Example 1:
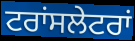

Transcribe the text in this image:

ਟਰਾਂਸਲੇਟਰਾਂ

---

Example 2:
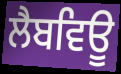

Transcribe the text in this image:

ਲੈਬਵਿਊ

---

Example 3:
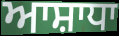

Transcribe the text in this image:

ਆਸ਼ਾਧਾ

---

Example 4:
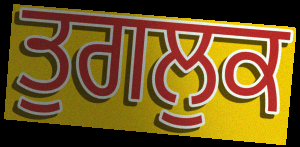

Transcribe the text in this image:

ਤੁਗਲੁਕ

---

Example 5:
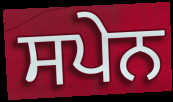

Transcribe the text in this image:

ਸਪੇਨ